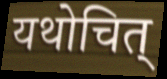
यथोचित्